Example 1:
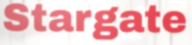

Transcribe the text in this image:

Stargate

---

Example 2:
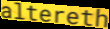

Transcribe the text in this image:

altereth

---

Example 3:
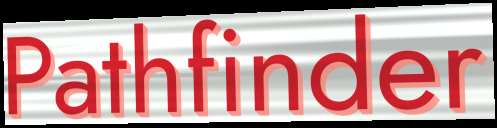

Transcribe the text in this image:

Pathfinder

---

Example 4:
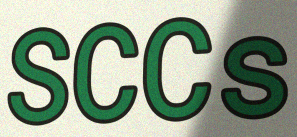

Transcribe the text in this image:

SCCs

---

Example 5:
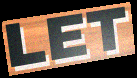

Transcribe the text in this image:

LET